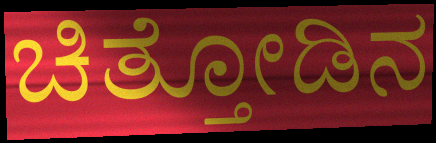
ಚಿತ್ತೋಡಿನ